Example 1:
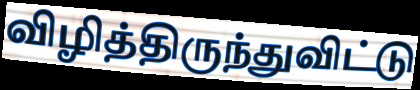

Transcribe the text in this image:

விழித்திருந்துவிட்டு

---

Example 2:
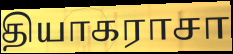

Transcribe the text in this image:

தியாகராசா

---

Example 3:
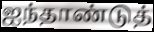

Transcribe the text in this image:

ஐந்தாண்டுத்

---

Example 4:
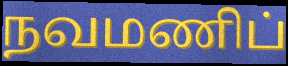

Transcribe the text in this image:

நவமணிப்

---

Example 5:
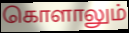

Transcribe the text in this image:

கொளாலும்